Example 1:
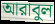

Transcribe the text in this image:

আরাবুল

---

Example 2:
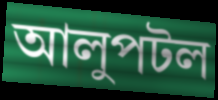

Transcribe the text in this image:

আলুপটল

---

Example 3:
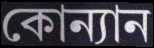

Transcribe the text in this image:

কোন্যান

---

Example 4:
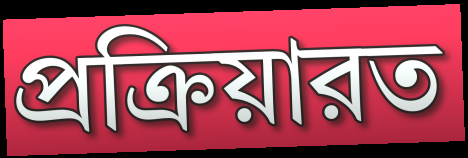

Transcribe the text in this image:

প্রক্রিয়ারত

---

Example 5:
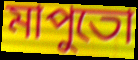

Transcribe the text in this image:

মাপুতো